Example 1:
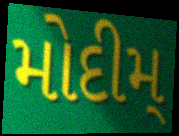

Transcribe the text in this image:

મોદીમ્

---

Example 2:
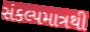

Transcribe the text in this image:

સંકલ્પમાત્રથી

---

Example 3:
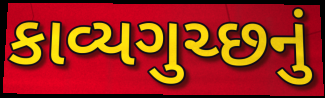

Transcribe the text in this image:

કાવ્યગુચ્છનું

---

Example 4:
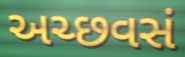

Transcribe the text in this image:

અચ્છવસં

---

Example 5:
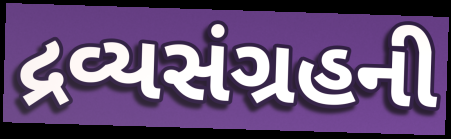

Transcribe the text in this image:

દ્રવ્યસંગ્રહની